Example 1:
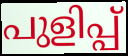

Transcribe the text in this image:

പുളിപ്പ്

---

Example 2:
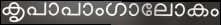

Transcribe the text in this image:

കൃപാപാംഗാലോകം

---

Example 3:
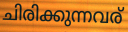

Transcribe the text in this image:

ചിരിക്കുന്നവര്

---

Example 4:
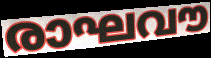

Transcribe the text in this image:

രാഘവൗ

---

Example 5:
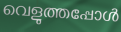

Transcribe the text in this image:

വെളുത്തപ്പോൾ